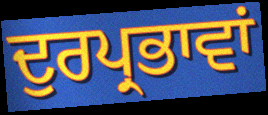
ਦੁਰਪ੍ਰਭਾਵਾਂ